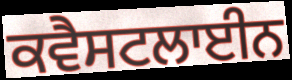
ਕਵੈਸਟਲਾਈਨ